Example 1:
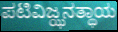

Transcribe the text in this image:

ಪಟಿವಿಜ್ಝನತ್ಥಾಯ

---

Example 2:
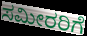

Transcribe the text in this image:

ಸಮೀರರಿಗೆ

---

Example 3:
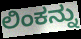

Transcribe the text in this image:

ಲಿಂಕನ್ನು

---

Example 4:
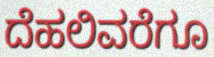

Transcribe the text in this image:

ದೆಹಲಿವರೆಗೂ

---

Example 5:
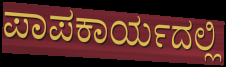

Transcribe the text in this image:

ಪಾಪಕಾರ್ಯದಲ್ಲಿ